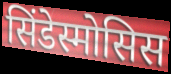
सिंडेस्मोसिस